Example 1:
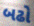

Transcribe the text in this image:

બઢો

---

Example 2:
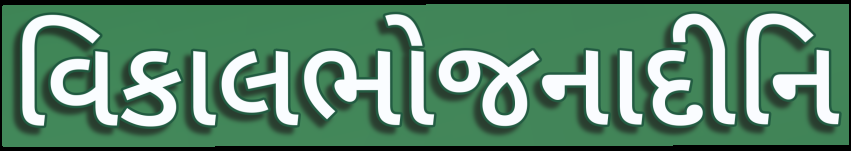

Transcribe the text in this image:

વિકાલભોજનાદીનિ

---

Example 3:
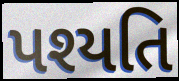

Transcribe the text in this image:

પશ્યતિ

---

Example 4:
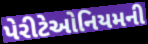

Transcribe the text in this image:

પેરીટેઓનિયમની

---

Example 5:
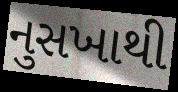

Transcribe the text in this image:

નુસખાથી